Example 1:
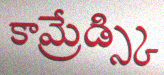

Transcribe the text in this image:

కామ్రేడ్స్కి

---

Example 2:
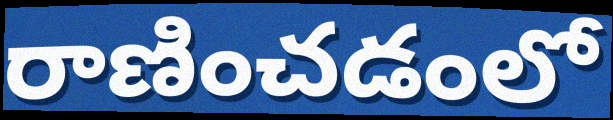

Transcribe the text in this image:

రాణించడంలో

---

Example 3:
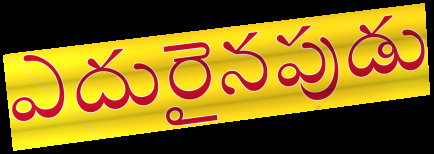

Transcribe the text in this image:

ఎదురైనపుడు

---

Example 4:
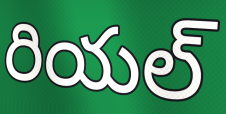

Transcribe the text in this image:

రియల్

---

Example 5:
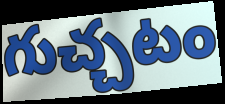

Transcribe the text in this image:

గుచ్చటం